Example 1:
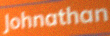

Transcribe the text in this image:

Johnathan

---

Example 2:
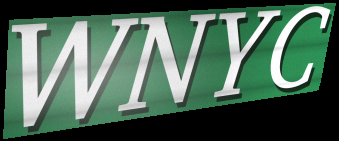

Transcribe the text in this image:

WNYC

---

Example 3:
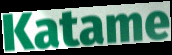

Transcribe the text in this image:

Katame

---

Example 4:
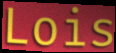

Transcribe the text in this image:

Lois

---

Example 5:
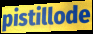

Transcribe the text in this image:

pistillode